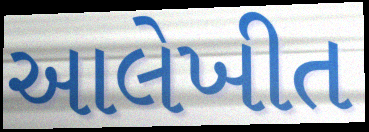
આલેખીત